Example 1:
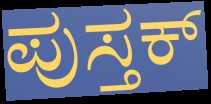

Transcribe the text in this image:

ಪುಸ್ತಕ್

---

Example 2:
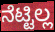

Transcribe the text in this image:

ನೆಟ್ಟಿಲ್ಲ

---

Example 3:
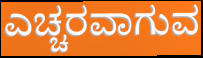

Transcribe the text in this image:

ಎಚ್ಚರವಾಗುವ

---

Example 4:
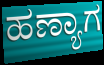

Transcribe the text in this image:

ಹಣ್ಯಾಗ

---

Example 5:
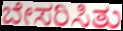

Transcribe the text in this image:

ಬೇಸರಿಸಿತು